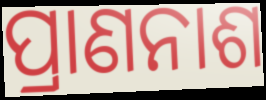
ପ୍ରାଣନାଶ